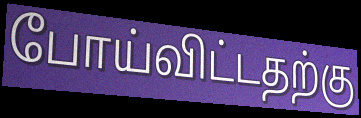
போய்விட்டதற்கு